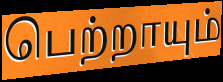
பெற்றாயும்